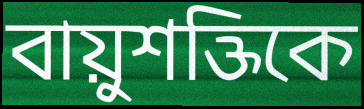
বায়ুশক্তিকে